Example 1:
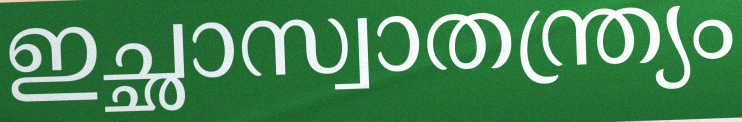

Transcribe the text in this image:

ഇച്ഛാസ്വാതന്ത്ര്യം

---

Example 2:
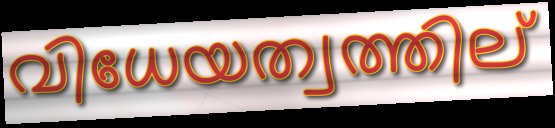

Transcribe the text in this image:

വിധേയത്വത്തില്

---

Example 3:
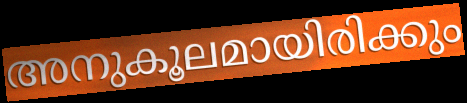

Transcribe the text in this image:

അനുകൂലമായിരിക്കും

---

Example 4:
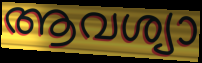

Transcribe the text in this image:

ആവശ്യാ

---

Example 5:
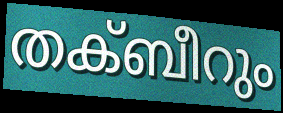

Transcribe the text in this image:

തക്ബീറും